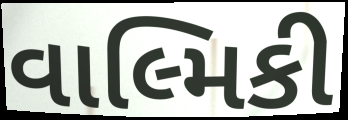
વાલ્મિકી